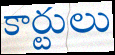
కార్టులు